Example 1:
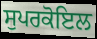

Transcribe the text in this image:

ਸੁਪਰਕੋਇਲ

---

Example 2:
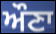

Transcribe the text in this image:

ਔਣਾ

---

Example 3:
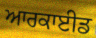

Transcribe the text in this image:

ਆਰਕਾਈਡ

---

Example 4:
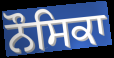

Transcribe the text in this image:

ਨੌਸਿਕਾ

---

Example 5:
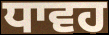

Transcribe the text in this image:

ਧਾਵਹ